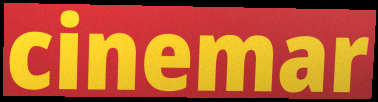
cinemar